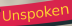
Unspoken